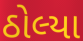
ઠોલ્યા